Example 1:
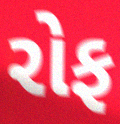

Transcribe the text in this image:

રોફ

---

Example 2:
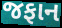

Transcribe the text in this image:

જફાન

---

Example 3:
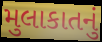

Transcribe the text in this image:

મુલાકાતનું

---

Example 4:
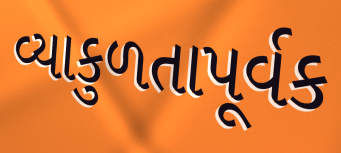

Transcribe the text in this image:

વ્યાકુળતાપૂર્વક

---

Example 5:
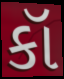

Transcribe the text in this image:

કૉ